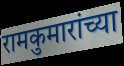
रामकुमारांच्या